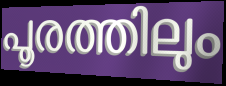
പൂരത്തിലും